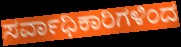
ಸರ್ವಾಧಿಕಾರಿಗಳಿಂದ